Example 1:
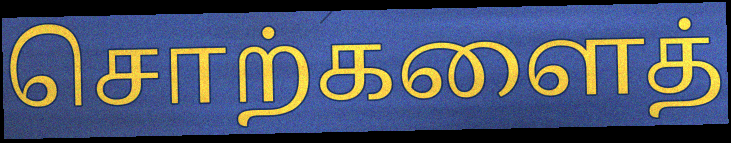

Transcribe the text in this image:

சொற்களைத்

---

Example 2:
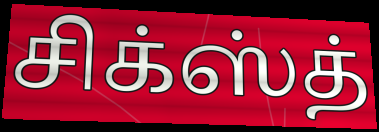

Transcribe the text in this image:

சிக்ஸ்த்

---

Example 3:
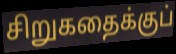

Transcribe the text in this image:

சிறுகதைக்குப்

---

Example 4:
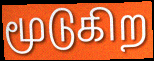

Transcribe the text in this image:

மூடுகிற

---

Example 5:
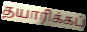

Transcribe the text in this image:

தயாரிக்கப்